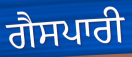
ਗੈਸਪਾਰੀ